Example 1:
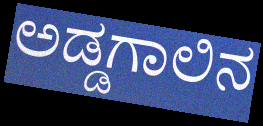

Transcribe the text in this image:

ಅಡ್ಡಗಾಲಿನ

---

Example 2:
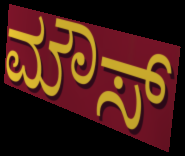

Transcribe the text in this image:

ಮೌಸ್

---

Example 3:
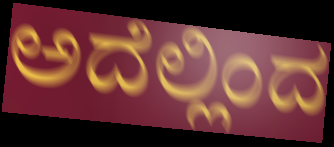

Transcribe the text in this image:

ಅದೆಲ್ಲಿಂದ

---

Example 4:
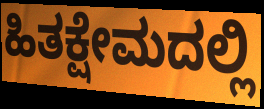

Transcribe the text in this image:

ಹಿತಕ್ಷೇಮದಲ್ಲಿ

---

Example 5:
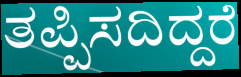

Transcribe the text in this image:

ತಪ್ಪಿಸದಿದ್ದರೆ